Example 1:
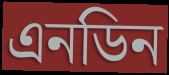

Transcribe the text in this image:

এনডিন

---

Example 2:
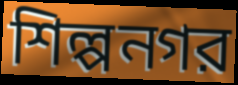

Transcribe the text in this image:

শিল্পনগর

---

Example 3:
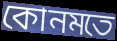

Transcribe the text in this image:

কোনমতে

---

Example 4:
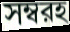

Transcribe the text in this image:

সম্বরহ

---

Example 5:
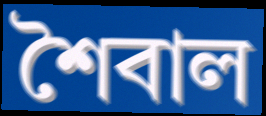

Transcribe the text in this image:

শৈবাল